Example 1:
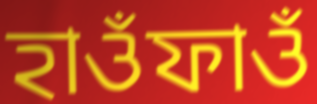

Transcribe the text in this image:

হাওঁফাওঁ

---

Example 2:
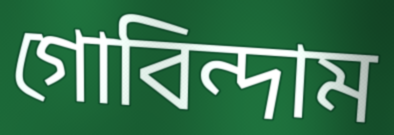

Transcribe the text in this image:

গোবিন্দাম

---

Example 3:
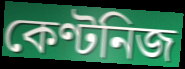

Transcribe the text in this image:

কেণ্টনিজ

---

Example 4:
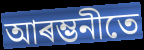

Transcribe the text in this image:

আৰম্ভনীতে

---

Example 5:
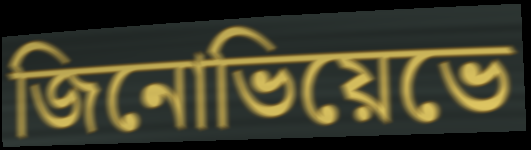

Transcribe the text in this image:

জিনোভিয়েভে